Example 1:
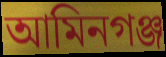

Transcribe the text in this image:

আমিনগঞ্জ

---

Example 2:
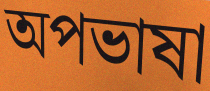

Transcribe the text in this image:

অপভাষা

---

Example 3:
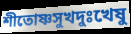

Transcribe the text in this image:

শীতোষ্ণসুখদুঃখেষু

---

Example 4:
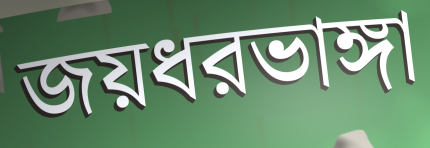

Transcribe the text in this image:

জয়ধরভাঙ্গা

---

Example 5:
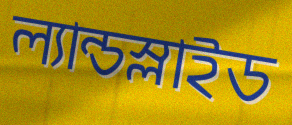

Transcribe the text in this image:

ল্যান্ডস্লাইড